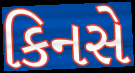
કિનસે